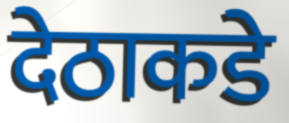
देठाकडे